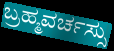
ಬ್ರಹ್ಮವರ್ಚಸ್ಸು